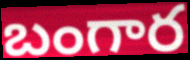
బంగార